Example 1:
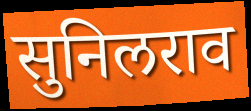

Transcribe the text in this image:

सुनिलराव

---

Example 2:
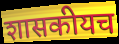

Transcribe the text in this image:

शासकीयच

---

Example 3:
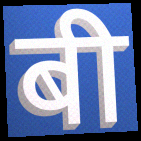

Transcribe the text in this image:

बी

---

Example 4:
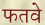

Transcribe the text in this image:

फतवे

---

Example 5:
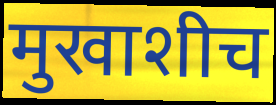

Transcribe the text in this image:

मुखाशीच